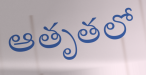
ఆతృతలో